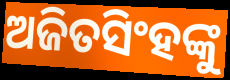
ଅଜିତସିଂହଙ୍କୁ